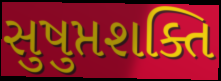
સુષુપ્તશક્તિ